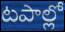
టపాల్లో